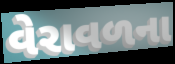
વેરાવળના